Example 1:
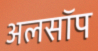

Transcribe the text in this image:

अलसॉप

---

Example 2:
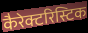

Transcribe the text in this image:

कैरेक्टरिस्टिक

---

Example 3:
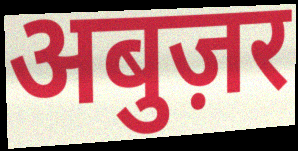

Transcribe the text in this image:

अबुज़र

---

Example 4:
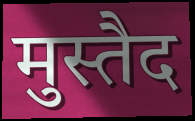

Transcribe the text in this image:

मुस्‍तैद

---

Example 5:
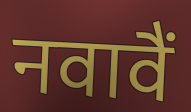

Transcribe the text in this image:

नवावैं